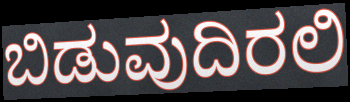
ಬಿಡುವುದಿರಲಿ